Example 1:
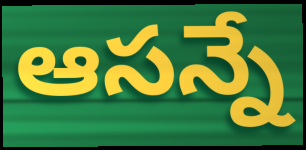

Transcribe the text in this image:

ఆసన్నే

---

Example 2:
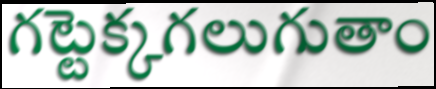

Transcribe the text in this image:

గట్టెక్కగలుగుతాం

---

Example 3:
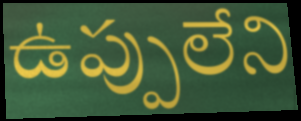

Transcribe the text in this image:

ఉప్పులేని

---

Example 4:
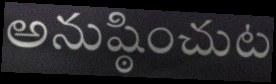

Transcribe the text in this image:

అనుష్ఠించుట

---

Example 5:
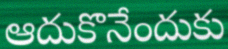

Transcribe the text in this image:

ఆదుకొనేందుకు